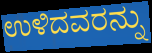
ಉಳಿದವರನ್ನು